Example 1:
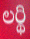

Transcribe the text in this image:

లర్థి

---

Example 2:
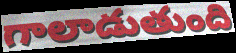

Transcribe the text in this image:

గాలాడుతుంది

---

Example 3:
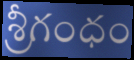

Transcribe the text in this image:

శ్రీగంధం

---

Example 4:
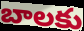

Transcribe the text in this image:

బాలకు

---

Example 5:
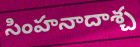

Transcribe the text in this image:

సింహనాదాశ్చ